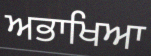
ਅਭਾਖਿਆ